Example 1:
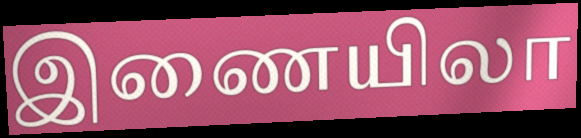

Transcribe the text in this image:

இணையிலா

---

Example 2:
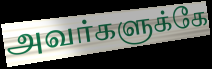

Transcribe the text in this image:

அவர்களுக்கே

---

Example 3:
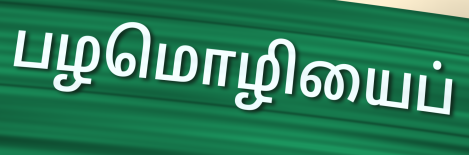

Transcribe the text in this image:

பழமொழியைப்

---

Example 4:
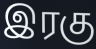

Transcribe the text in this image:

இரகு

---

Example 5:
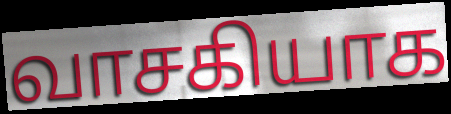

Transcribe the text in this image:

வாசகியாக